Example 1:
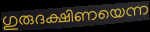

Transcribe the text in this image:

ഗുരുദക്ഷിണയെന്ന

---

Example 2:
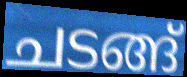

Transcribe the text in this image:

ചടങ്ങ്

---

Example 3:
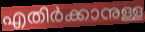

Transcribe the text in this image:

എതിർക്കാനുള്ള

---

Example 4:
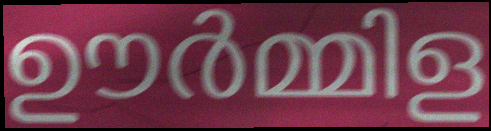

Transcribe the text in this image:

ഊർമ്മിള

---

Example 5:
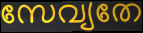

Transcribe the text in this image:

സേവ്യതേ